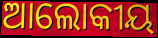
ଆଲୋକୀୟ